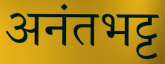
अनंतभट्ट